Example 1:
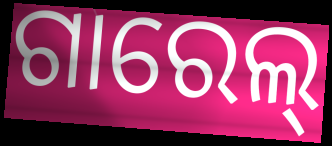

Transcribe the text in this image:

ଗାରେଲ୍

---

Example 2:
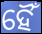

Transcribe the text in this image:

ହୈଁ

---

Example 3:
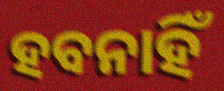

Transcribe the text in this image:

ହବନାହିଁ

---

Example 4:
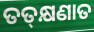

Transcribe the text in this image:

ତତ୍‌କ୍ଷଣାତ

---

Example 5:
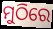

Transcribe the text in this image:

ମୁଠିରେ